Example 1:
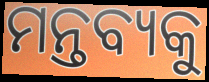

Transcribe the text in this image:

ମନ୍ତବ୍ୟକୁ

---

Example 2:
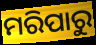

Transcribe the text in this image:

ମରିପାରୁ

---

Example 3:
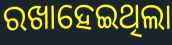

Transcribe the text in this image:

ରଖାହେଇଥିଲା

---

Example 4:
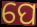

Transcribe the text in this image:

ପେ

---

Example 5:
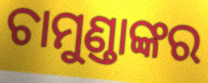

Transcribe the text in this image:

ଚାମୁଣ୍ଡାଙ୍କର